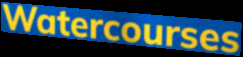
Watercourses